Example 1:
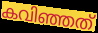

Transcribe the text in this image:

കവിഞ്ഞത്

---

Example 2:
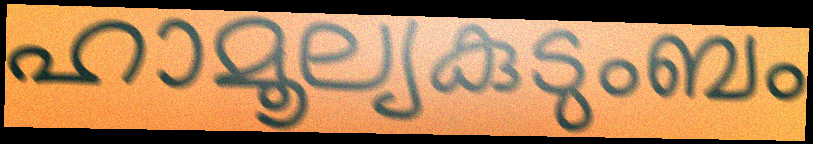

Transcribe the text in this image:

ഹാമൂല്യകുടുംബം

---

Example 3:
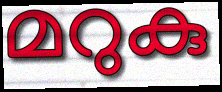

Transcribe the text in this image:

മറുകു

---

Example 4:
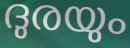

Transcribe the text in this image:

ദുരയും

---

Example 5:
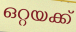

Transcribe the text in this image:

ഒറ്റയക്ക്